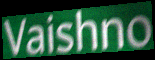
Vaishno